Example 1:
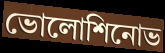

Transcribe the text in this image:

ভোলোশিনোভ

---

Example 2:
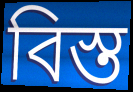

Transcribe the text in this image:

বিস্ত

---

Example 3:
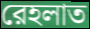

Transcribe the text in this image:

রেহলাত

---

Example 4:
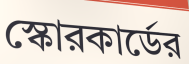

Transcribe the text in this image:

স্কোরকার্ডের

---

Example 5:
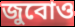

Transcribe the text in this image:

জুবোও